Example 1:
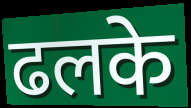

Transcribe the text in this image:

ढलके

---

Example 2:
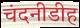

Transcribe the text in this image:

चंदनीडीह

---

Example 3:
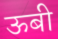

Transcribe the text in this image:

ऊबी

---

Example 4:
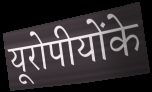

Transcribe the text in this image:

यूरोपीयोंके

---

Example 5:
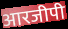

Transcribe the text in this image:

आरजीपी